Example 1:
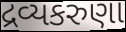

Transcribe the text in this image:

દ્રવ્યકરુણા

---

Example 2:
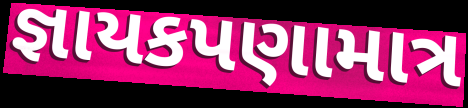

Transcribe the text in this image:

જ્ઞાયકપણામાત્ર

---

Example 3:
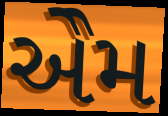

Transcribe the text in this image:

એેમ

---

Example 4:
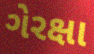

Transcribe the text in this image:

ગેરક્ષા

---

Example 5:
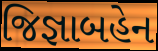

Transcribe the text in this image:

જિજ્ઞાબહેન